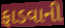
ફાડવાની